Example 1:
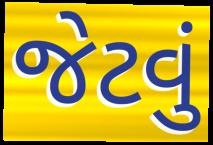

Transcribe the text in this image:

જેટવું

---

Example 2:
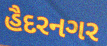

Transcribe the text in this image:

હૈદરનગર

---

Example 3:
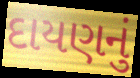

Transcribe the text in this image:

દાયણનું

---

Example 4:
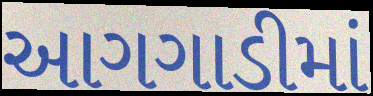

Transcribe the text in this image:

આગગાડીમાં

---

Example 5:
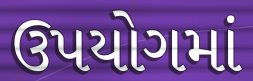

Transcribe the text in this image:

ઉપયોગમાં